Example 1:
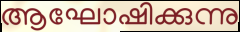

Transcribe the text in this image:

ആഘോഷിക്കുന്നു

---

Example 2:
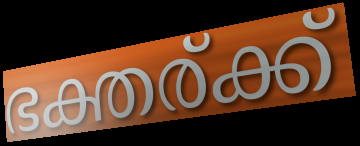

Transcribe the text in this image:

ഭക്തര്ക്ക്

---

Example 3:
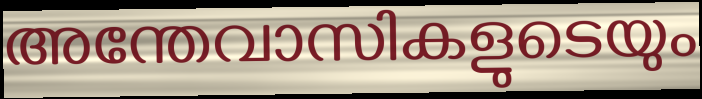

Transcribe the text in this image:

അന്തേവാസികളുടെയും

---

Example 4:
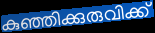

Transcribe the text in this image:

കുഞ്ഞിക്കുരുവിക്ക്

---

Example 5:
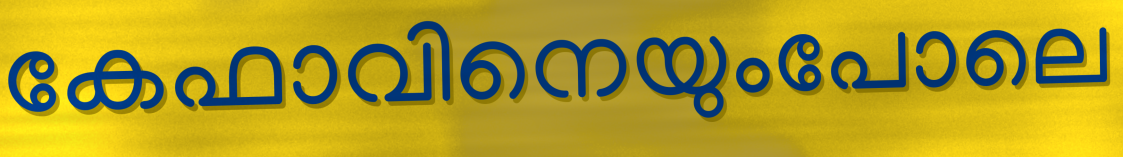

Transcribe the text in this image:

കേഫാവിനെയുംപോലെ